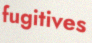
fugitives